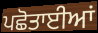
ਪਛੋਤਾਈਆਂ